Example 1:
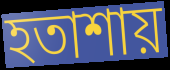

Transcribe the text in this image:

হতাশায়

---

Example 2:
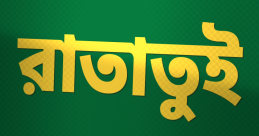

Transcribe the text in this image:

রাতাতুই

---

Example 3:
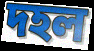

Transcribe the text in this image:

দহল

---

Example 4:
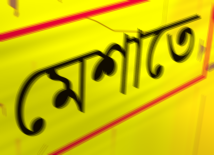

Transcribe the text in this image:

মেশাতে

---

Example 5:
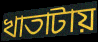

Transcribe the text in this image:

খাতাটায়